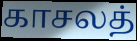
காசலத்